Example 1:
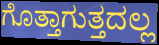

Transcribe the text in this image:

ಗೊತ್ತಾಗುತ್ತದಲ್ಲ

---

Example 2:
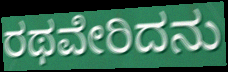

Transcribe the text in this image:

ರಥವೇರಿದನು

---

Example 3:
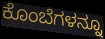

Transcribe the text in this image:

ಕೊಂಬೆಗಳನ್ನೂ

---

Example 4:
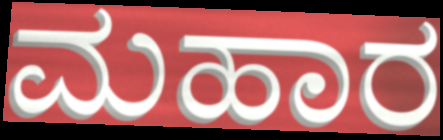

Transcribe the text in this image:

ಮಹಾರ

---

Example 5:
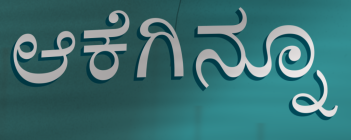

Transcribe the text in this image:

ಆಕೆಗಿನ್ನೂ